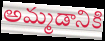
అమ్మడానికి